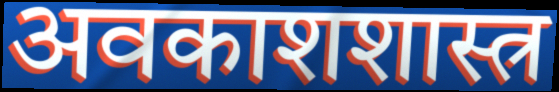
अवकाशशास्त्र